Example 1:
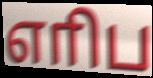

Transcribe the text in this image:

எரிப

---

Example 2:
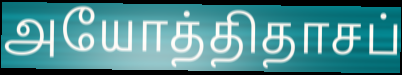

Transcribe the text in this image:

அயோத்திதாசப்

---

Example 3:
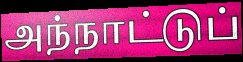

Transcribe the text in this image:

அந்நாட்டுப்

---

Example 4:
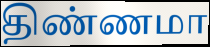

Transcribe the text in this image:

திண்ணமா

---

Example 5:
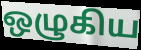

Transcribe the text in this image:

ஒழுகிய